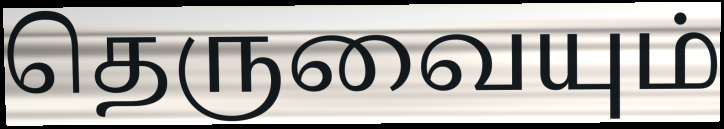
தெருவையும்